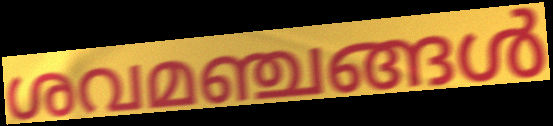
ശവമഞ്ചങ്ങൾ